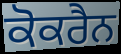
ਕੋਕਰੈਨ